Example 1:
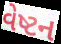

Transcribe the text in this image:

વેષ્ટન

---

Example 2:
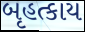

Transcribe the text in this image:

બૃહત્કાય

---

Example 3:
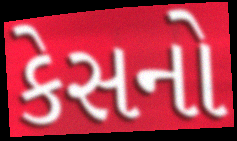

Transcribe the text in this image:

કેસનો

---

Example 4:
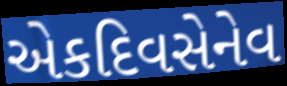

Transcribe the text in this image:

એકદિવસેનેવ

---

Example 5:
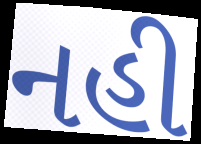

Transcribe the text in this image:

નહી